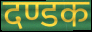
दण्डक